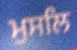
ਮੁਸਲਿ